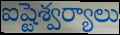
ఐష్టెశ్వర్యాలు